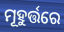
ମୂହୁର୍ତ୍ତରେ